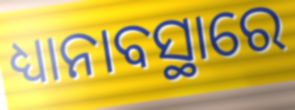
ଧ୍ୟାନାବସ୍ଥାରେ